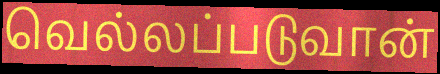
வெல்லப்படுவான்